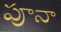
పూనా